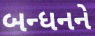
બન્ધનને